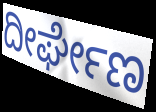
ದೀರ್ಘೇಣ